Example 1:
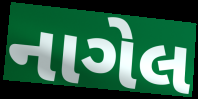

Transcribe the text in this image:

નાગેલ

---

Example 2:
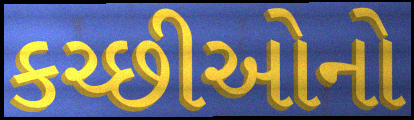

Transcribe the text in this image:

કચ્છીઓનો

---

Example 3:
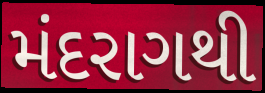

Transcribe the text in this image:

મંદરાગથી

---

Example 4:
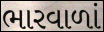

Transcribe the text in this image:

ભારવાળાં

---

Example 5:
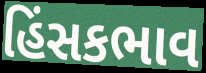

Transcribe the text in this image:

હિંસકભાવ